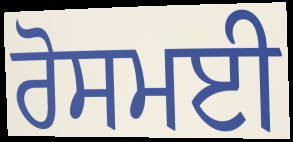
ਰੋਸਮਈ